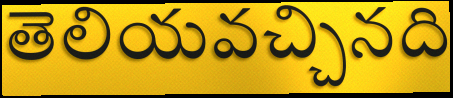
తెలియవచ్చినది